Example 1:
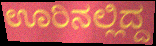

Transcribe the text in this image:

ಊರಿನಲ್ಲಿದ್ದ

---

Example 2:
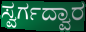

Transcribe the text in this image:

ಸ್ವರ್ಗದ್ವಾರ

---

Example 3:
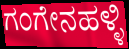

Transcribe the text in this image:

ಗಂಗೇನಹಳ್ಳಿ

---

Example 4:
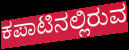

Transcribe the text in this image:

ಕಪಾಟಿನಲ್ಲಿರುವ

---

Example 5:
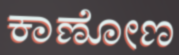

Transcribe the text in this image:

ಕಾಣೋಣ